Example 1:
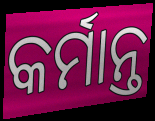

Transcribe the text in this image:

କର୍ମାନ୍ତ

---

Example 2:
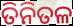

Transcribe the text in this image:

ତିନିତଳ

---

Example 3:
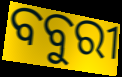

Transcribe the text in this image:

ବବୁରୀ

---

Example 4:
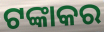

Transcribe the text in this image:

ଟଙ୍କାକର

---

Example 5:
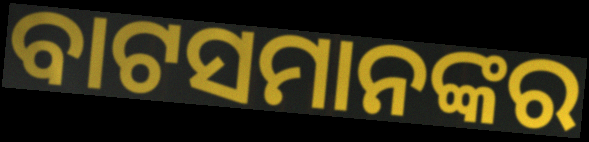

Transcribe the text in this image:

ବାଟସମାନଙ୍କର